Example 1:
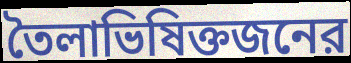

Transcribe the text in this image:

তৈলাভিষিক্তজনের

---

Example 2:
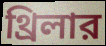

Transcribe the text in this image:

থ্রিলার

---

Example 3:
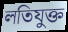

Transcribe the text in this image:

লতিযুক্ত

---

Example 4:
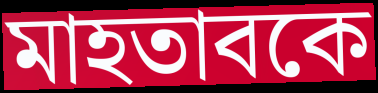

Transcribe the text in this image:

মাহতাবকে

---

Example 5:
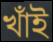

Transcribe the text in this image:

খাঁই